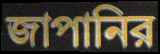
জাপানির